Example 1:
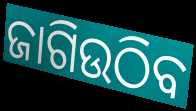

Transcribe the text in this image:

ଜାଗିଉଠିବ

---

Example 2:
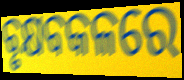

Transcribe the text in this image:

ବୃକ୍ଷବକଳରେ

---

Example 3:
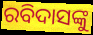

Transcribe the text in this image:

ରବିଦାସଙ୍କୁ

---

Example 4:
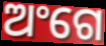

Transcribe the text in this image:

ଅଂଗେ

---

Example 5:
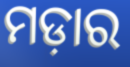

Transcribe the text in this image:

ମଡ଼ାର